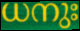
ധനുഃ